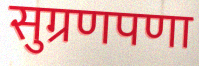
सुग्रणपणा